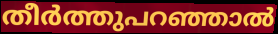
തീർത്തുപറഞ്ഞാൽ